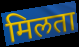
मिलता